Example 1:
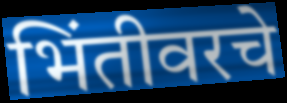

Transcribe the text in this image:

भिंतीवरचे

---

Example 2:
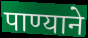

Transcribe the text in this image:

पाण्याने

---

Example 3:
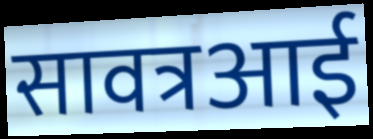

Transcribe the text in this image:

सावत्रआई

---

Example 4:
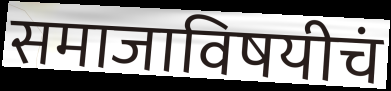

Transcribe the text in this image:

समाजाविषयीचं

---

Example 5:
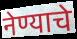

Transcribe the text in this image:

नेण्याचे